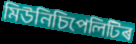
মিউনিচিপেলিটিৰ